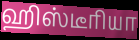
ஹிஸ்டீரியா